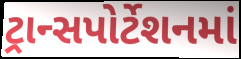
ટ્રાન્સપોર્ટેશનમાં